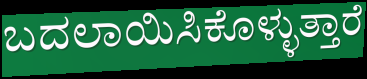
ಬದಲಾಯಿಸಿಕೊಳ್ಳುತ್ತಾರೆ